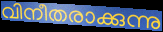
വിനീതരാക്കുന്നു